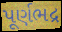
પૂર્ણભદ્ર